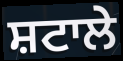
ਸ਼ਟਾਲੇ